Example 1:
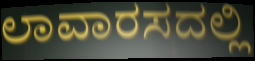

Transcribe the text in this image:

ಲಾವಾರಸದಲ್ಲಿ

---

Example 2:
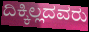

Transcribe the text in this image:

ದಿಕ್ಕಿಲ್ಲದವರು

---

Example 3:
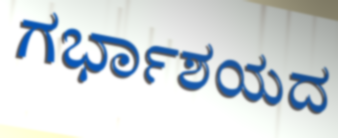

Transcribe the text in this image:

ಗರ್ಭಾಶಯದ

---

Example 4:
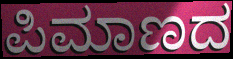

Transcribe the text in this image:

ಪಿಮಾಣದ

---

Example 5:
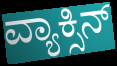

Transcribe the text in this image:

ವ್ಯಾಕ್ಸಿನ್